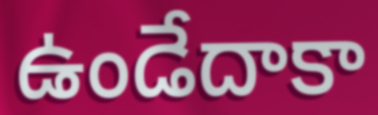
ఉండేదాకా